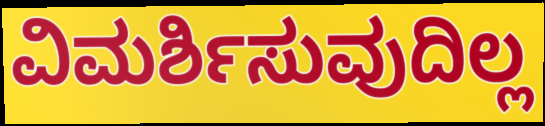
ವಿಮರ್ಶಿಸುವುದಿಲ್ಲ